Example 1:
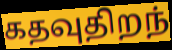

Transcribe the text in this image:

கதவுதிறந்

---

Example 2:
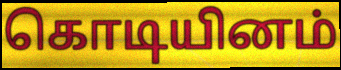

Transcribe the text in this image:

கொடியினம்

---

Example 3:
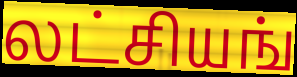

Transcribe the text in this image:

லட்சியங்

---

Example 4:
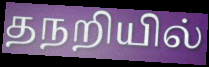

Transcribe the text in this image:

தநறியில்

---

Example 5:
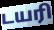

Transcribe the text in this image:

டயரி